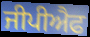
ਜੀਪੀਐਫ